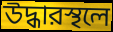
উদ্ধারস্থলে